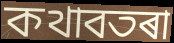
কথাবতৰা